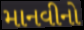
માનવીનો